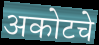
अकोटचे